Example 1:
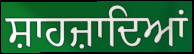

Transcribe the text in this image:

ਸ਼ਾਹਜ਼ਾਦਿਆਂ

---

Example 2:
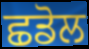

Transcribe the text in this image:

ਛਡੋਲ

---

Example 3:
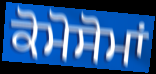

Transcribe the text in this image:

ਕੋਮੋਸੋਮਾਂ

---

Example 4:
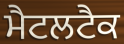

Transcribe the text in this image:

ਮੈਟਲਟੈਕ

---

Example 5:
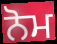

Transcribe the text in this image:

ਨੋਮ